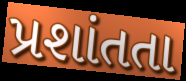
પ્રશાંતતા